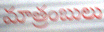
మాత్రంబులు